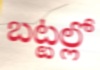
బట్టల్లో